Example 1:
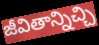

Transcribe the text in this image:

జీవితాన్నిచ్చి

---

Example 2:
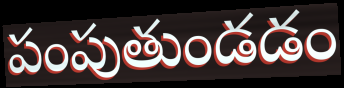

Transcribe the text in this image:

పంపుతుండడం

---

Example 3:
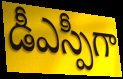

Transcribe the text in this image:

డీఎస్పీగా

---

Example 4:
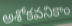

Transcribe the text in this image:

అశోకవనికాం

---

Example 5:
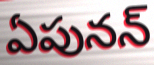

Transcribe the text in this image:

ఏపునన్